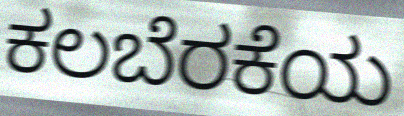
ಕಲಬೆರಕೆಯ